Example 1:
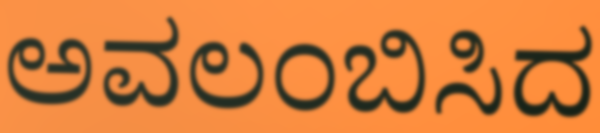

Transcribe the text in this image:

ಅವಲಂಬಿಸಿದ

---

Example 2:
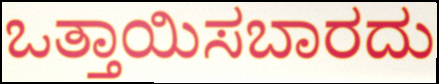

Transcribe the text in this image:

ಒತ್ತಾಯಿಸಬಾರದು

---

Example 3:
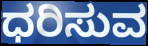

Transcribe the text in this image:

ಧರಿಸುವ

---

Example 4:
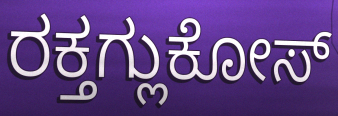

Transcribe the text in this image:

ರಕ್ತಗ್ಲುಕೋಸ್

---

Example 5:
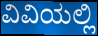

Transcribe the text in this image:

ವಿವಿಯಲ್ಲಿ